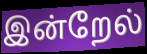
இன்றேல்